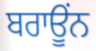
ਬਰਾਊਂਨ